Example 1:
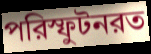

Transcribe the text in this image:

পরিস্ফুটনরত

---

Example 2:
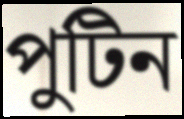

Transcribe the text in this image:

পুটিন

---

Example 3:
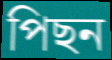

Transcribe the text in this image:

পিছন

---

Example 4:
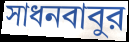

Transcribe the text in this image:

সাধনবাবুর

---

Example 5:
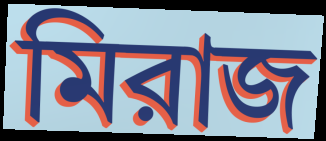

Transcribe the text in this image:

মিরাজ